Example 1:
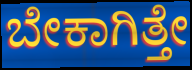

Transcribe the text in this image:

ಬೇಕಾಗಿತ್ತೇ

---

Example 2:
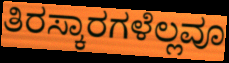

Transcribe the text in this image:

ತಿರಸ್ಕಾರಗಳೆಲ್ಲವೂ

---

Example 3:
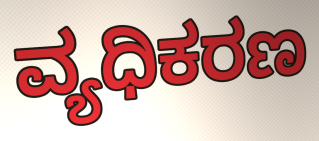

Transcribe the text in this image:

ವ್ಯಧಿಕರಣ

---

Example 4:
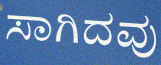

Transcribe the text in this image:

ಸಾಗಿದವು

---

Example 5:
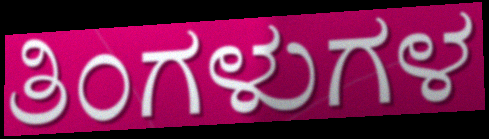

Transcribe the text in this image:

ತಿಂಗಳುಗಳ